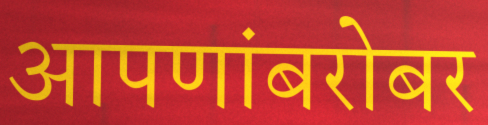
आपणांबरोबर